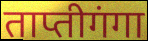
ताप्तीगंगा